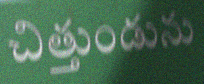
చిత్తుండును